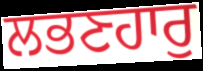
ਲਭਣਹਾਰੁ